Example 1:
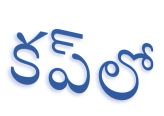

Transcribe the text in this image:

కప్‌లో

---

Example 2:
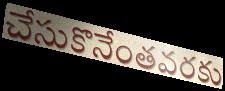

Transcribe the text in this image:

చేసుకొనేంతవరకు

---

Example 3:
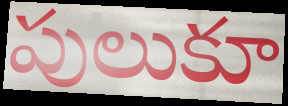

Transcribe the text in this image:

పులుకూ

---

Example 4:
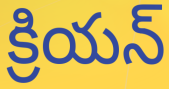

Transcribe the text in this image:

క్రియన్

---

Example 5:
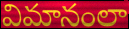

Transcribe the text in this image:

విమానంలా